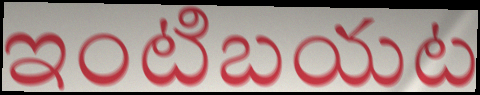
ఇంటిబయట